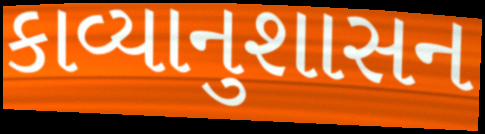
કાવ્યાનુશાસન